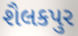
શૈલકપુર